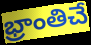
భ్రాంతిచే